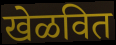
खेळवित